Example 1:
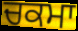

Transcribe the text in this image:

ਚਕਮਾ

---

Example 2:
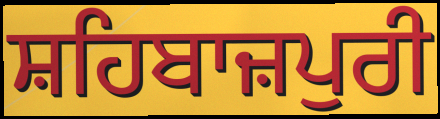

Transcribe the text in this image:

ਸ਼ਹਿਬਾਜ਼ਪੁਰੀ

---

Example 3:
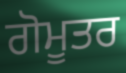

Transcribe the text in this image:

ਗੋਮੂਤਰ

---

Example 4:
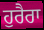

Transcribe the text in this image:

ਹੁਰੈਰਾ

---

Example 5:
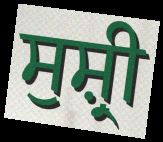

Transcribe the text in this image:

ਸੁਸ਼੍ਰੀ